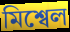
মিশ্বেল